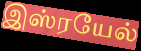
இஸ்ரயேல்